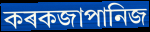
কৰকজাপানিজ